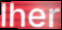
lher